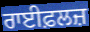
ਰਾਈਫ਼ਲਜ਼